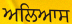
ਅਲਿਆਸ